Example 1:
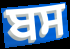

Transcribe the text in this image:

ਬਸ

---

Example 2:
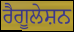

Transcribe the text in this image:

ਰੈਗੂਲੇਸ਼ਨ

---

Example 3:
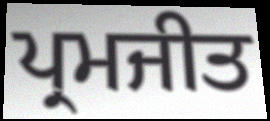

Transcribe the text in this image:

ਪ੍ਰਮਜੀਤ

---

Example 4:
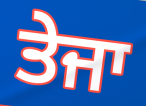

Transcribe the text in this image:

ਤੇਜਾ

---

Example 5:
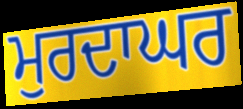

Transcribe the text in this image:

ਮੁਰਦਾਘਰ